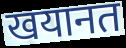
खयानत